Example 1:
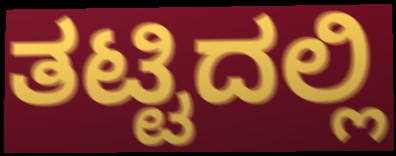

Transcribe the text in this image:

ತಟ್ಟಿದಲ್ಲಿ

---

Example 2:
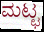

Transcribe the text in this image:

ಮಟ್ಟ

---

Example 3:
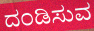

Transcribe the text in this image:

ದಂಡಿಸುವ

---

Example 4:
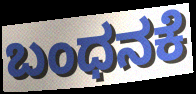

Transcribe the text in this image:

ಬಂಧನಕೆ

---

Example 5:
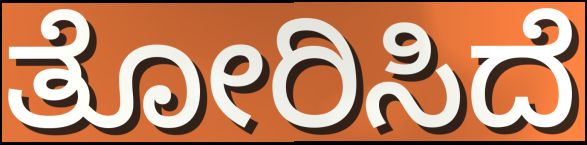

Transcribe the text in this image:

ತೋರಿಸಿದೆ